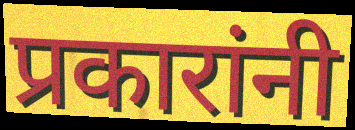
प्रकारांनी